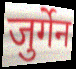
जुर्गेन